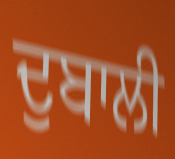
ਦੁਬਾਲੀ